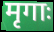
मृगाः